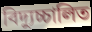
বিদ্যুচ্চালিত